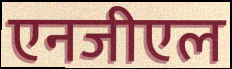
एनजीएल